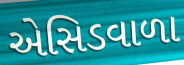
એસિડવાળા